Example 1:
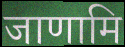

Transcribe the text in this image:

जाणामि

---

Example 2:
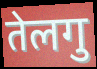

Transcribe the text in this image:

तेलगु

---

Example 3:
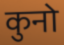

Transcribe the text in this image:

कुनो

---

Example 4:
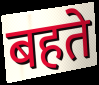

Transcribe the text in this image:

बहते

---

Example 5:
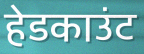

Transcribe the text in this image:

हेडकाउंट